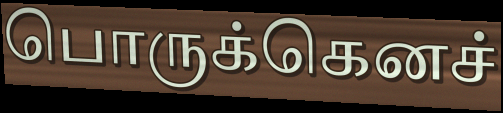
பொருக்கெனச்